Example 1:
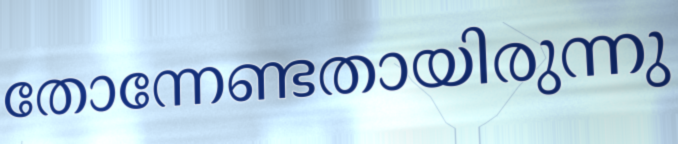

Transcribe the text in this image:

തോന്നേണ്ടതായിരുന്നു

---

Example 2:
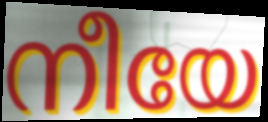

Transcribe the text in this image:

നീയേ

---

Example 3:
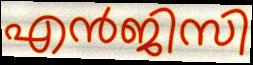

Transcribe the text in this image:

എൻജിസി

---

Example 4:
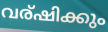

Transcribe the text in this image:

വര്ഷിക്കും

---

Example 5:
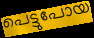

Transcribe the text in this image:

പെട്ടുപോയ